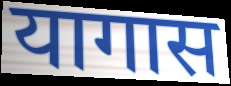
यागास